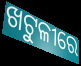
ଖଟୁଳୀରେ